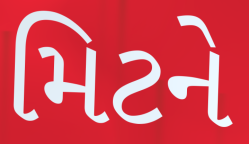
મિટને